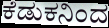
ಕೆಡುಕನಿಂದ